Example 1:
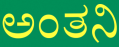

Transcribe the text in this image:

ಅಂತನಿ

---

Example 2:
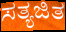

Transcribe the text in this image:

ಸತ್ಯಜಿತ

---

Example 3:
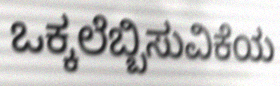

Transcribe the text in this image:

ಒಕ್ಕಲೆಬ್ಬಿಸುವಿಕೆಯ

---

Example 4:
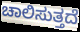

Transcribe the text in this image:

ಚಾಲಿಸುತ್ತದೆ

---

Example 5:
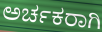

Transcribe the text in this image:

ಅರ್ಚಕರಾಗಿ